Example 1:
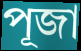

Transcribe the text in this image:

পূজা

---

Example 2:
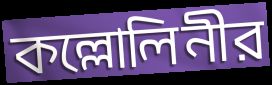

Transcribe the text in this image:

কল্লোলিনীর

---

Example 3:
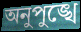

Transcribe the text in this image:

অনুপুঙ্খে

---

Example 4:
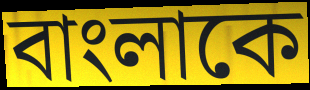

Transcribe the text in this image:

বাংলাকে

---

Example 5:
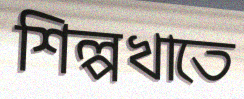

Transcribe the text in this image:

শিল্পখাতে